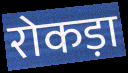
रोकड़ा